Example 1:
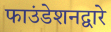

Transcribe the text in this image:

फाउंडेशनद्वारे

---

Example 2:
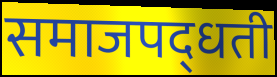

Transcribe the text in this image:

समाजपद्धती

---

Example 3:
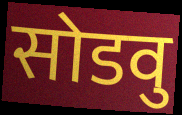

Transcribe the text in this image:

सोडवु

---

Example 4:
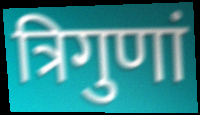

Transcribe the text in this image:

त्रिगुणां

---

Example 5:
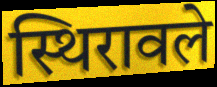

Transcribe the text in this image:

स्थिरावले